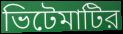
ভিটেমাটির